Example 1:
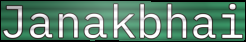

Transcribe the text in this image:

Janakbhai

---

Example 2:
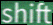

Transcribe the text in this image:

shift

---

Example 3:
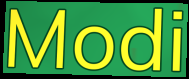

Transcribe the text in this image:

Modi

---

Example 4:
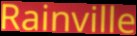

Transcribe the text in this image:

Rainville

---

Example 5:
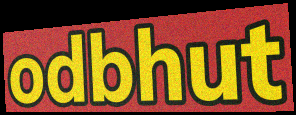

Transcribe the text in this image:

odbhut